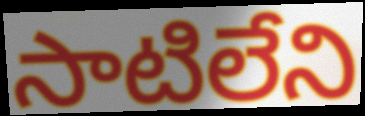
సాటిలేని